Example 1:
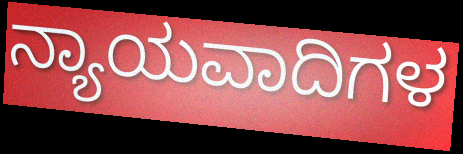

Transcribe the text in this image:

ನ್ಯಾಯವಾದಿಗಳ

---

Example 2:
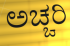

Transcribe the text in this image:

ಅಚ್ಚರಿ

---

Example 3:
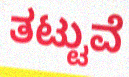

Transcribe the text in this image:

ತಟ್ಟುವೆ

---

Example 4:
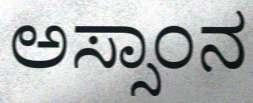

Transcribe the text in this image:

ಅಸ್ಸಾಂನ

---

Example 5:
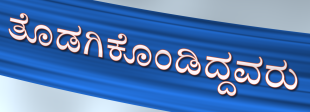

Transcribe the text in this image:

ತೊಡಗಿಕೊಂಡಿದ್ದವರು